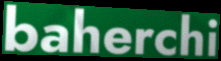
baherchi